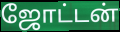
ஜோட்டன்